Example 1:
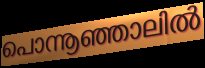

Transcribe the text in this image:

പൊന്നൂഞ്ഞാലിൽ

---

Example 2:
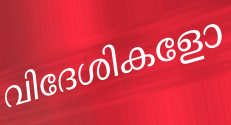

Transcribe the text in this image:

വിദേശികളോ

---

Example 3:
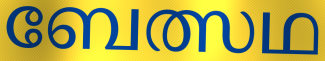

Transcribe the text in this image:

ബേത്സഥ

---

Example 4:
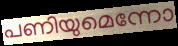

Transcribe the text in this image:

പണിയുമെന്നോ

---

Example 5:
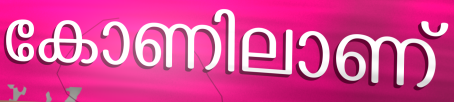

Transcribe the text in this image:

കോണിലാണ്